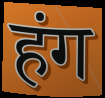
हंग